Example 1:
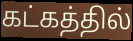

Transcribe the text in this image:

கட்கத்தில்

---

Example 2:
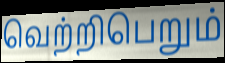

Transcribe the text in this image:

வெற்றிபெறும்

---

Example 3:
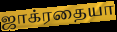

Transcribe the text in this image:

ஜாக்ரதையா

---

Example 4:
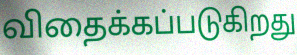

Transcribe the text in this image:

விதைக்கப்படுகிறது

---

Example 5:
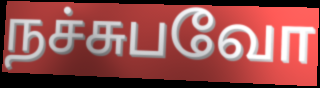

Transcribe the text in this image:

நச்சுபவோ